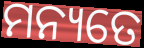
ମନ୍ୟତେ